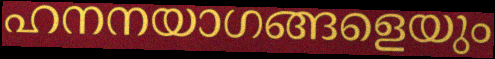
ഹനനയാഗങ്ങളെയും